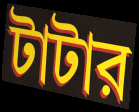
টাটার